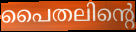
പൈതലിന്റെ